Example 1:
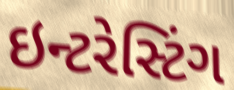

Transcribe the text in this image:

ઇન્ટરેસ્ટિંગ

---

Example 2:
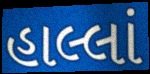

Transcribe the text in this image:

હાલ્લાં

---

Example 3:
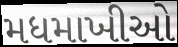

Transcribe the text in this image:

મધમાખીઓ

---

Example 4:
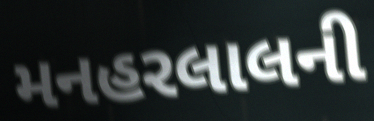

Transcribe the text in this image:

મનહરલાલની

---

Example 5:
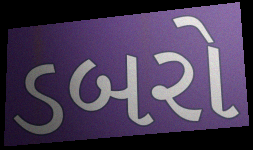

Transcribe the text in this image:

ડબરો